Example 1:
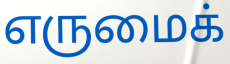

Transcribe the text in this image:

எருமைக்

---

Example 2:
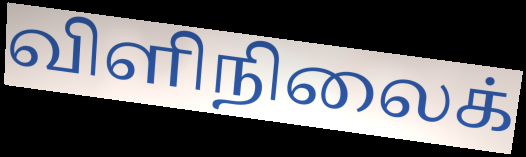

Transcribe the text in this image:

விளிநிலைக்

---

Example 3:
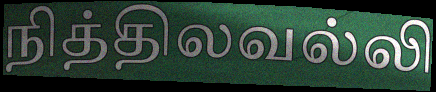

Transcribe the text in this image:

நித்திலவல்லி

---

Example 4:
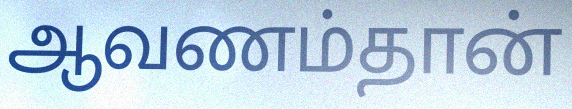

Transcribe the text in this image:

ஆவணம்தான்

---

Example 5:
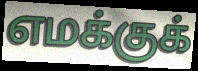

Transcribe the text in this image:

எமக்குக்